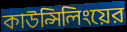
কাউন্সিলিংয়ের